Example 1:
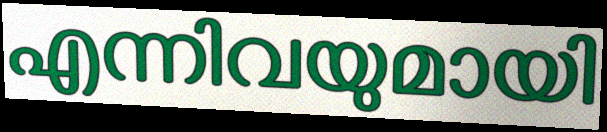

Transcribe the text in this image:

എന്നിവയുമായി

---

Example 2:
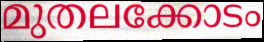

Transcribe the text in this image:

മുതലക്കോടം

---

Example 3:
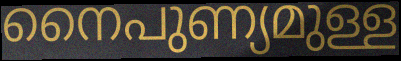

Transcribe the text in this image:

നൈപുണ്യമുള്ള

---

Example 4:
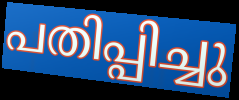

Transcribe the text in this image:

പതിപ്പിച്ചു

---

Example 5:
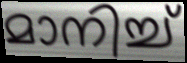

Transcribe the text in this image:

മാനിച്ച്